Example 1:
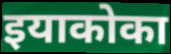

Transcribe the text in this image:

इयाकोका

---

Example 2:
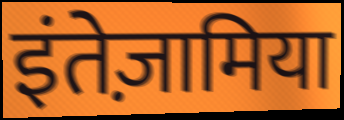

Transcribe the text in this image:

इंतेज़ामिया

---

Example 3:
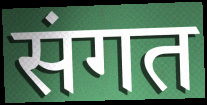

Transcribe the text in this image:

संगत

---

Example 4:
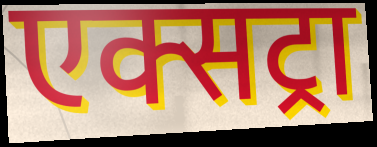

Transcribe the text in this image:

एक्सट्रा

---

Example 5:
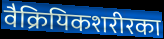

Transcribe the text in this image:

वैक्रियिकशरीरका